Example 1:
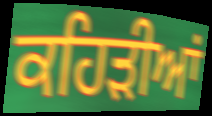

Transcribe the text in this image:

ਕਹਿੜੀਆਂ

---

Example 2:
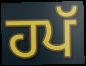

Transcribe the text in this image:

ਹਪੱ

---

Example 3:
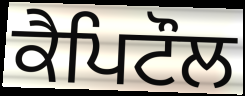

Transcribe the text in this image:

ਕੈਪਿਟੌਲ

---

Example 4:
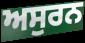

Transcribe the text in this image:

ਅਸੁਰਨ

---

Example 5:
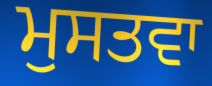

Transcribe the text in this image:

ਮੁਸਤਵਾ